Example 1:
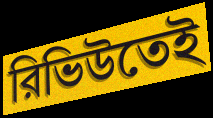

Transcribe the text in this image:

রিভিউতেই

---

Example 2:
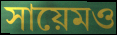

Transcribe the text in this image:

সায়েমও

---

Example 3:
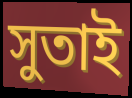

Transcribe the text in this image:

সুতাই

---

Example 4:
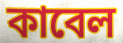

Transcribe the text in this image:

কাবেল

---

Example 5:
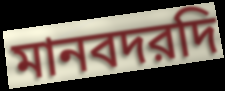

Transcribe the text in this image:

মানবদরদি